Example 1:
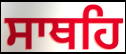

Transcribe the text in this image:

ਸਾਥਹਿ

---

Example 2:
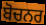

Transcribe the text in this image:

ਬੋਚਨਰ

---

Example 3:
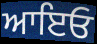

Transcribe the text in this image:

ਆਇਓ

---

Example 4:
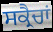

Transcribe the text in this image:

ਸਕ੍ਰੈਚਾਂ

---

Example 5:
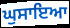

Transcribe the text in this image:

ਘੁਸਾਇਆ